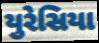
યુરેસિયા